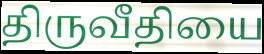
திருவீதியை